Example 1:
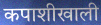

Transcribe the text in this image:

कपाशीखाली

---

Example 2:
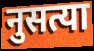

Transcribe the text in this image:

नुसत्या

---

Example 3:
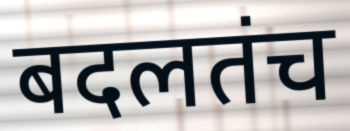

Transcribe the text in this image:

बदलतंच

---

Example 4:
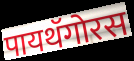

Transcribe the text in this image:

पायथॅगोरस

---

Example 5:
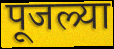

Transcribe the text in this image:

पूजल्या